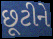
છૂટીને